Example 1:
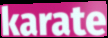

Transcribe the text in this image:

karate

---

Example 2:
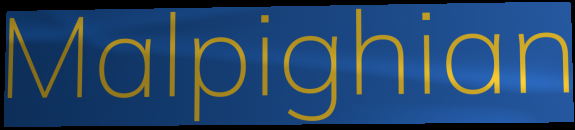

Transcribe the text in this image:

Malpighian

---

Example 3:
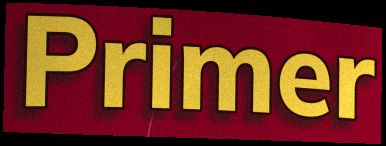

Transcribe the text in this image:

Primer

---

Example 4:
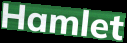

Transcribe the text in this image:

Hamlet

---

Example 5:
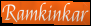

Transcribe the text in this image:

Ramkinkar